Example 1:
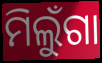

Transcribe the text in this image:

ମିଲୁଁଗା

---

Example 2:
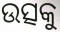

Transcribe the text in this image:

ଉତ୍ସକୁ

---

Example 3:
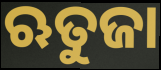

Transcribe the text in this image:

ଋତୁଜା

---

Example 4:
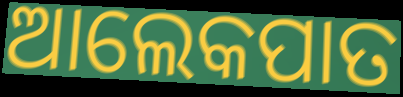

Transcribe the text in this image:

ଆଲେକପାତ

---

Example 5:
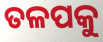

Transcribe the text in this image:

ତଳପକୁ